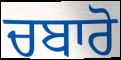
ਚਬਾਰੋ